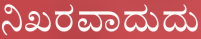
ನಿಖರವಾದುದು